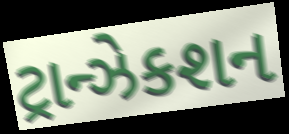
ટ્રાન્ઝેકશન